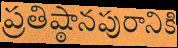
ప్రతిష్ఠానపురానికి